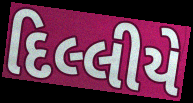
દિલ્લીયે